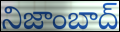
నిజాంబాద్